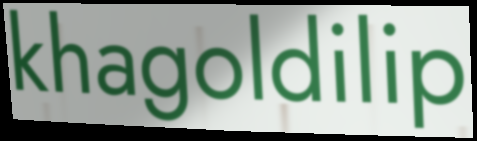
khagoldilip